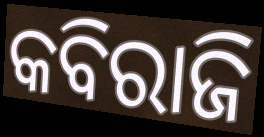
କବିରାଜି